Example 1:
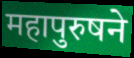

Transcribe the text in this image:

महापुरुषने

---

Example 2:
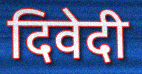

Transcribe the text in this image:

दिवेदी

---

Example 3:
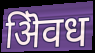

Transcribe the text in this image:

ऄिवध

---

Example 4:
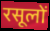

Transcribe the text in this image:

रसूलों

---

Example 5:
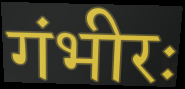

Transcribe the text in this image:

गंभीरः